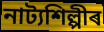
নাট্যশিল্পীৰ